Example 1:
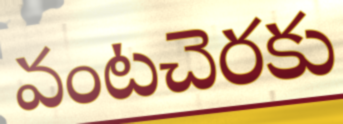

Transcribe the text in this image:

వంటచెరకు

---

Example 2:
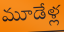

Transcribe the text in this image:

మూడేళ్ల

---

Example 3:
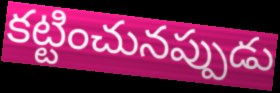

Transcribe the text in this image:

కట్టించునప్పుడు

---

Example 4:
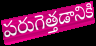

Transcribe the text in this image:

పరుగెత్తడానికి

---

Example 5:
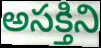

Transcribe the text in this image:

అసక్తిని